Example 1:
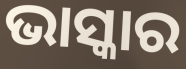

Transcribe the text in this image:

ଭାସ୍କାର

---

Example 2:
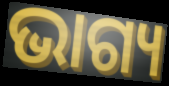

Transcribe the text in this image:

ଭାଗ୍ୟ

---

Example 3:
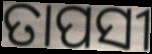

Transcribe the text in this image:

ତାପସୀ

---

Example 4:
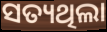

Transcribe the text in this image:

ସତ୍ୟଥିଲା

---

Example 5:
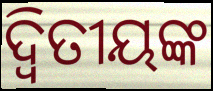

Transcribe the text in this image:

ଦ୍ଵିତୀୟଙ୍କ